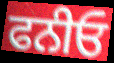
ਫਨੀਓ